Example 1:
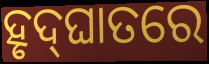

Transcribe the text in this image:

ହୃଦ୍‌ଘାତରେ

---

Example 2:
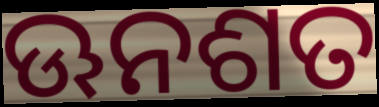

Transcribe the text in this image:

ଊନଶତ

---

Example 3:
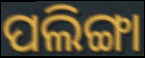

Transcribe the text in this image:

ପଲିଙ୍ଗା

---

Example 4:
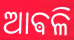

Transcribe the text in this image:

ଆଵଳି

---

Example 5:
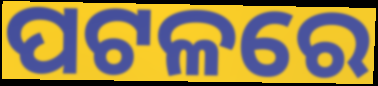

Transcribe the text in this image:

ପଟଳରେ